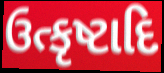
ઉત્કૃષ્ટાદિ